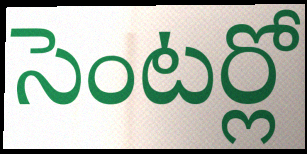
సెంటర్లో